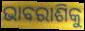
ଭାବରାଶିକୁ